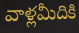
వాళ్లమీదికి